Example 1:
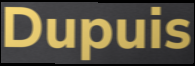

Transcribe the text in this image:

Dupuis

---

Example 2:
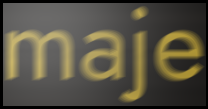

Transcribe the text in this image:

maje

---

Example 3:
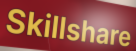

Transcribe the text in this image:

Skillshare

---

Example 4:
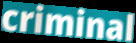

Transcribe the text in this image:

criminal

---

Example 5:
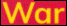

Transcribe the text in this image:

War